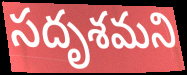
సదృశమని